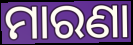
ମାରଣା